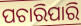
ପଚାରିପାରି